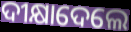
ଦୀକ୍ଷାଦେଲେ